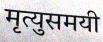
मृत्युसमयी